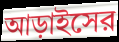
আড়াইসের